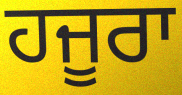
ਹਜੂਰਾ